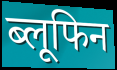
ब्लूफिन